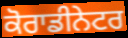
ਕੋਰਾਡੀਨੇਟਰ